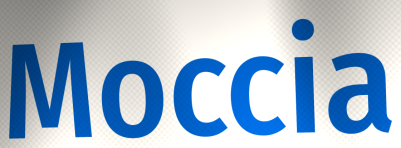
Moccia